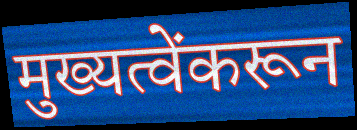
मुख्यत्वेंकरून